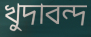
খুদাবন্দ